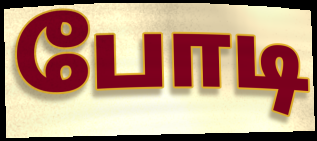
போடி